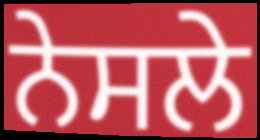
ਨੇਸਲੇ